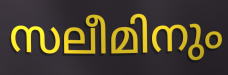
സലീമിനും